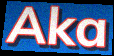
Aka